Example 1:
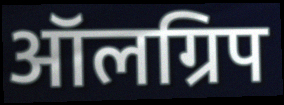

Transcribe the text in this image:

ऑलग्रिप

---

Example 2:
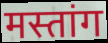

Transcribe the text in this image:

मस्तांग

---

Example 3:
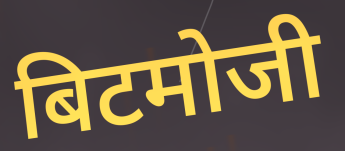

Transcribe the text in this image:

बिटमोजी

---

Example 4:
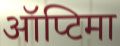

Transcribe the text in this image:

ऑप्टिमा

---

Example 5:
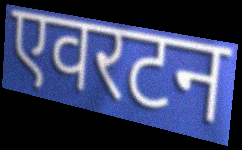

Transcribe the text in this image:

एवरटन